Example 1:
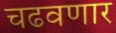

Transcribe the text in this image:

चढवणार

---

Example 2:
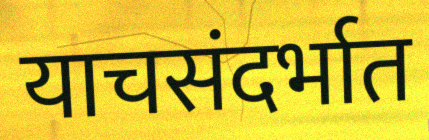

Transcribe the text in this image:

याचसंदर्भात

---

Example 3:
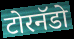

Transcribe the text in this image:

टोरनॅडो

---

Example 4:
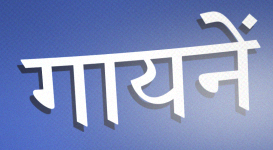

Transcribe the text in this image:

गायनें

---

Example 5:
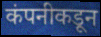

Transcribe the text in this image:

कंपनीकडून